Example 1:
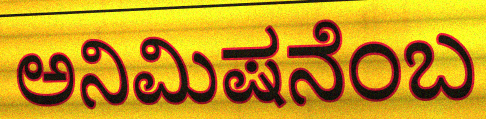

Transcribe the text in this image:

ಅನಿಮಿಷನೆಂಬ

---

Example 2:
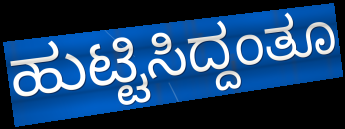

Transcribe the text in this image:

ಹುಟ್ಟಿಸಿದ್ದಂತೂ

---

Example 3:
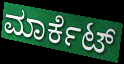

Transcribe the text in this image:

ಮಾರ್ಕೆಟ್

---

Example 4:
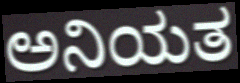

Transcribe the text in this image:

ಅನಿಯತ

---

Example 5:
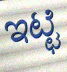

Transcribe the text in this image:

ಇಟ್ಟೆ